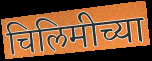
चिलिमीच्या